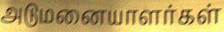
அடுமனையாளர்கள்